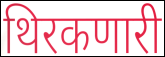
थिरकणारी